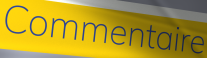
Commentaire